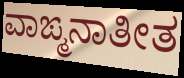
ವಾಙ್ಮನಾತೀತ